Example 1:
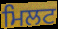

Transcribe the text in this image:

ਮਿਲਟ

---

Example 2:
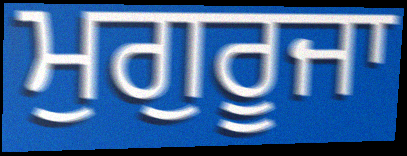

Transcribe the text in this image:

ਮੁਗੁਰੂਜਾ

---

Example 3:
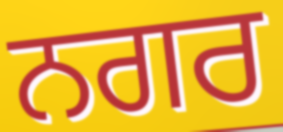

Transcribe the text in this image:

ਨਗਰ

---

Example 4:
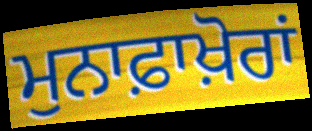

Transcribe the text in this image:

ਮੁਨਾਫ਼ਾਖ਼ੋਰਾਂ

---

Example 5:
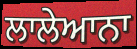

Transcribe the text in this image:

ਲਾਲੇਆਨਾ